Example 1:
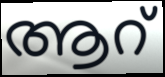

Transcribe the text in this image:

ആറ്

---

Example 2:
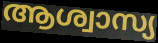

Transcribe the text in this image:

ആശ്വാസ്യ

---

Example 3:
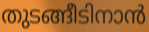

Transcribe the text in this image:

തുടങ്ങീടിനാൻ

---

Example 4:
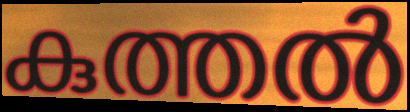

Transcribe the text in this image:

കുത്തൽ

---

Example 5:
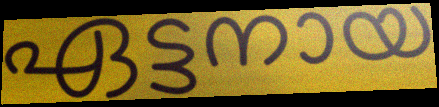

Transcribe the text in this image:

ഏട്ടനായ